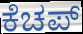
ಕೆಚಪ್